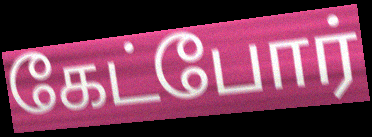
கேட்போர்